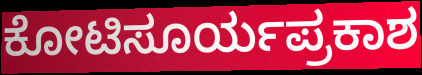
ಕೋಟಿಸೂರ್ಯಪ್ರಕಾಶ